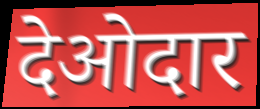
देओदार